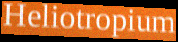
Heliotropium